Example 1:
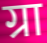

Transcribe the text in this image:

ग्रा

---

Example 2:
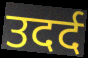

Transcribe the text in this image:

उदर्द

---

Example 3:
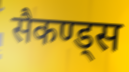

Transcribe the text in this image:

सैकण्ड्स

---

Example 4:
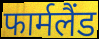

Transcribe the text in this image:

फार्मलैंड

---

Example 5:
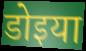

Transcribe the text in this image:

डोइया